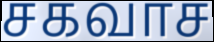
சகவாச